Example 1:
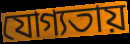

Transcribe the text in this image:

যোগ্যতায়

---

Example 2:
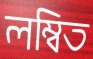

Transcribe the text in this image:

লম্বিত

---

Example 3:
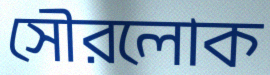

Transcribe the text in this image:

সৌরলোক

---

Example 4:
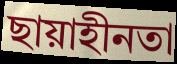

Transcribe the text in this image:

ছায়াহীনতা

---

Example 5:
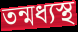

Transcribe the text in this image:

তন্মধ্যস্থ